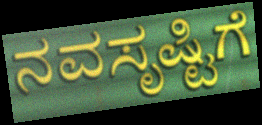
ನವಸೃಷ್ಟಿಗೆ